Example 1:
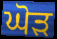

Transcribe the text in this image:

ਘੋੜ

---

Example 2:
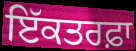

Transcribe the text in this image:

ਇੱਕਤਰਫ਼ਾ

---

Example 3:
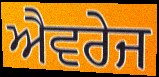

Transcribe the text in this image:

ਐਵਰੇਜ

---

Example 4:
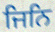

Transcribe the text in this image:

ਜਿਨਿ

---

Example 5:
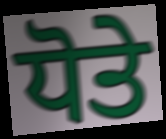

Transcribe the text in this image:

ਧੋਤੇ